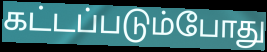
கட்டப்படும்போது